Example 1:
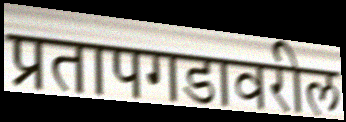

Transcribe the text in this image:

प्रतापगडावरील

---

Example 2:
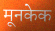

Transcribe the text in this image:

मूनकेक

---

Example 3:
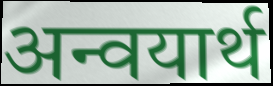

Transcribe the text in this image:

अन्वयार्थ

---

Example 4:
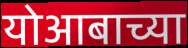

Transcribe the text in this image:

योआबाच्या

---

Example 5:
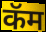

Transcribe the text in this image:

कॅम